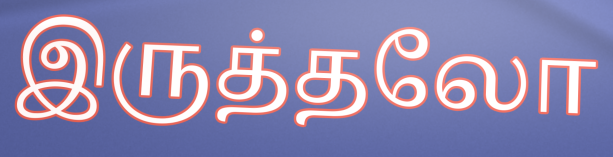
இருத்தலோ